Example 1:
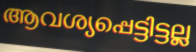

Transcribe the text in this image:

ആവശ്യപ്പെട്ടിട്ടല്ല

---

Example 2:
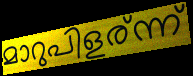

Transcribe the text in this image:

മാറുപിളര്ന്ന്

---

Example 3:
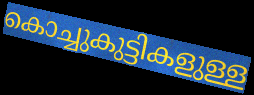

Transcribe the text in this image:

കൊച്ചുകുട്ടികളുള്ള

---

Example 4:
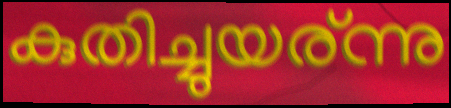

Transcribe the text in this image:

കുതിച്ചുയര്ന്നു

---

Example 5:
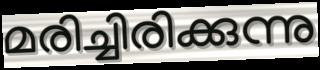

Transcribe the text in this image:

മരിച്ചിരിക്കുന്നു